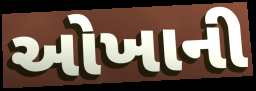
ઓખાની